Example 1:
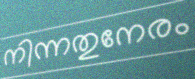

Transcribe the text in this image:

നിന്നതുനേരം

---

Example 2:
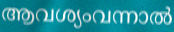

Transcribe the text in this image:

ആവശ്യംവന്നാൽ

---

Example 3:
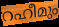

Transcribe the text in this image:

റഹീമും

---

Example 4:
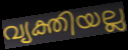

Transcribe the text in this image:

വ്യക്തിയല്ല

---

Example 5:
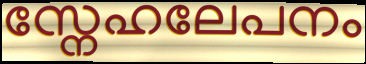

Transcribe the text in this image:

സ്നേഹലേപനം